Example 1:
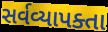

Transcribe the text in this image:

સર્વવ્યાપક્તા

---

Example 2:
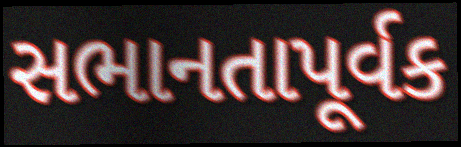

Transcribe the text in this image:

સભાનતાપૂર્વક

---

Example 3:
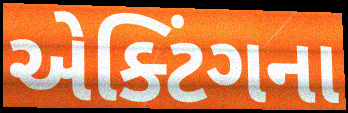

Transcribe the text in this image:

એક્ટિંગના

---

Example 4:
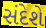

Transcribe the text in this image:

સંદેશે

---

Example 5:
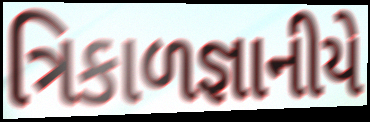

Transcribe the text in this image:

ત્રિકાળજ્ઞાનીયે